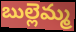
బుల్లెమ్మ